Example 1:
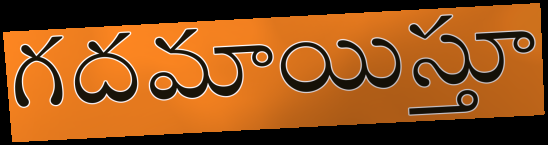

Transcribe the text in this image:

గదమాయిస్తూ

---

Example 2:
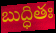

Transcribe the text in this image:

బుద్ధితః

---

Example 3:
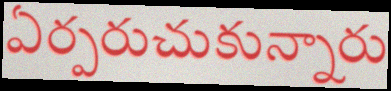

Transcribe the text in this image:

ఏర్పరుచుకున్నారు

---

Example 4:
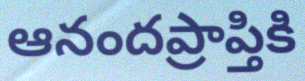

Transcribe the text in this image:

ఆనందప్రాప్తికి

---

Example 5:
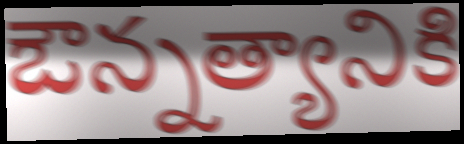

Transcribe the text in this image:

ఔన్నత్యానికి